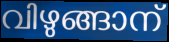
വിഴുങ്ങാന്